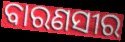
ବାରଣସୀର